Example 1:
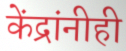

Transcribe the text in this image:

केंद्रांनीही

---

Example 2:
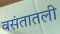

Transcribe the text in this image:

वसंतातली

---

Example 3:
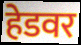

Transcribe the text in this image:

हेडवर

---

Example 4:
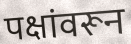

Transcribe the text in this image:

पक्षांवरून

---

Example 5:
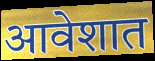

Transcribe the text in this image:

आवेशात